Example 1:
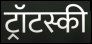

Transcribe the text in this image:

ट्रॉटस्की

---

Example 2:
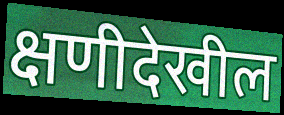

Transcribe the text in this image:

क्षणीदेखील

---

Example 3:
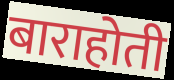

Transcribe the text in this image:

बाराहोती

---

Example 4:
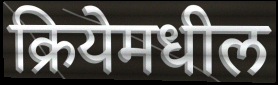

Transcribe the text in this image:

क्रियेमधील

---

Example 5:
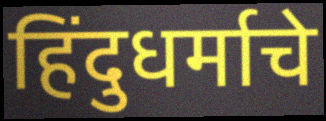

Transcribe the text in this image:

हिंदुधर्माचे